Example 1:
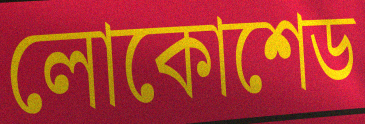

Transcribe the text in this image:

লোকোশেড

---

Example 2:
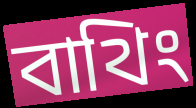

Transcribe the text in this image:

বাথিং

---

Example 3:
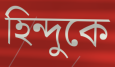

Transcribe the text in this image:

হিন্দুকে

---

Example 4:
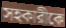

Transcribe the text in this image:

সহকারীকে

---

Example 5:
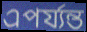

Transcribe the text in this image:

এপর্য্যন্ত